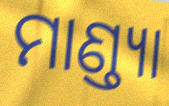
ମାଣ୍ଡ୍ୟା